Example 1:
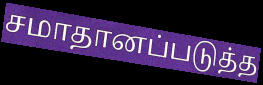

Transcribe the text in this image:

சமாதானப்படுத்த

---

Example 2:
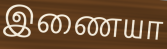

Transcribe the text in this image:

இணையா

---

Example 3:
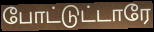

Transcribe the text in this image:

போட்டுட்டாரே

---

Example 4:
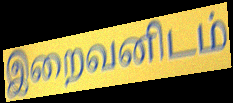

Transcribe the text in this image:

இறைவனிடம்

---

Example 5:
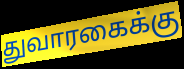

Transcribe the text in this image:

துவாரகைக்கு